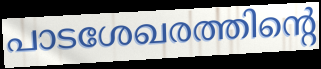
പാടശേഖരത്തിന്റെ